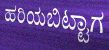
ಹರಿಯಬಿಟ್ಟಾಗ